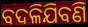
ବଦଳିଯିବଣି